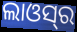
ଲାଓସ୍‌ର